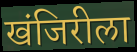
खंजिरीला